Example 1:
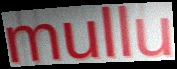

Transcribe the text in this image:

mullu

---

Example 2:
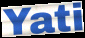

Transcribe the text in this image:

Yati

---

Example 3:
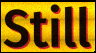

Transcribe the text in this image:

Still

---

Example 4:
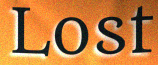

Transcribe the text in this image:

Lost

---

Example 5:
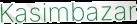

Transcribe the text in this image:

Kasimbazar